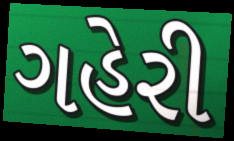
ગહેરી